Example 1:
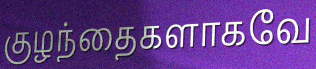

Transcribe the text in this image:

குழந்தைகளாகவே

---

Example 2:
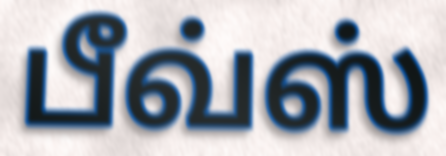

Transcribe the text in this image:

பீவ்ஸ்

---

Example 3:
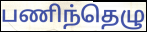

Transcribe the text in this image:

பணிந்தெழு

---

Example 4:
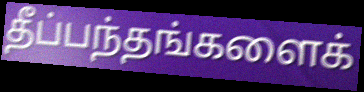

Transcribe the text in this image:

தீப்பந்தங்களைக்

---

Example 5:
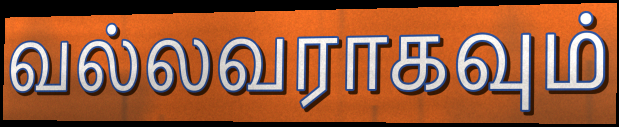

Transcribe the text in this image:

வல்லவராகவும்